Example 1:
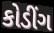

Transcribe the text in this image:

કોડીંગ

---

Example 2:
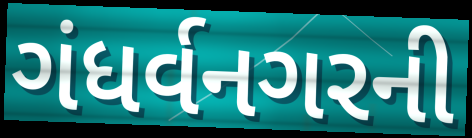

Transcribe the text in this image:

ગંધર્વનગરની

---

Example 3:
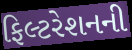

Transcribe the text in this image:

ફિલ્ટરેશનની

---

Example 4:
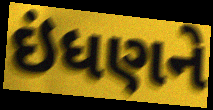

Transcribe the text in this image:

ઇંધણને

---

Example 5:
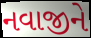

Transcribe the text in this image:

નવાજીને